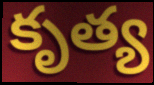
కృత్య